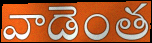
వాడెంత